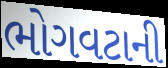
ભોગવટાની